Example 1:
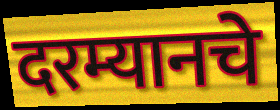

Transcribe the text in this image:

दरम्यानचे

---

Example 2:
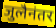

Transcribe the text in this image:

जुलैनंतर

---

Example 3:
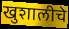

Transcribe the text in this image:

खुशालीचे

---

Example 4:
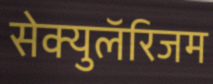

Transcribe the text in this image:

सेक्युलॅरिजम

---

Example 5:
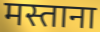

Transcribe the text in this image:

मस्ताना